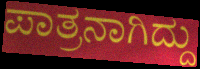
ಪಾತ್ರನಾಗಿದ್ದು